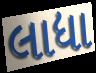
લાદ્યા